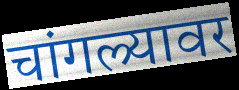
चांगल्यावर